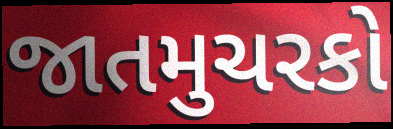
જાતમુચરકો